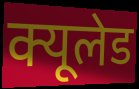
क्यूलेड